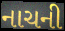
નાચની